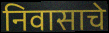
निवासाचे